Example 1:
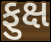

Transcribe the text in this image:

ફુક્ષ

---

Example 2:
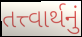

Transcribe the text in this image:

તત્ત્વાર્થનું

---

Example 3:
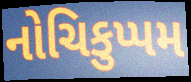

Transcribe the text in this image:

નોચિકુપ્પમ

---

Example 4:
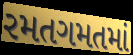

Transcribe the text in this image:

રમતગમતમાં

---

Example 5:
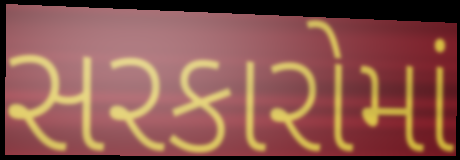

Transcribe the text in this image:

સરકારોમાં